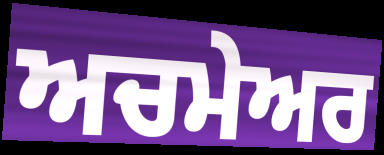
ਅਚਮੇਅਰ